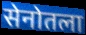
सेनोतला